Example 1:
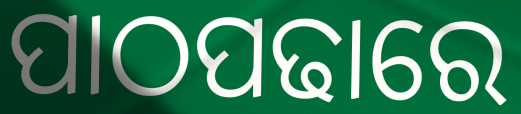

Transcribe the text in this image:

ପାଠପଢାରେ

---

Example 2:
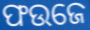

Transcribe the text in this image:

ଫଉଜେ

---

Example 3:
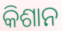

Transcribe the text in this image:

କିଶାନ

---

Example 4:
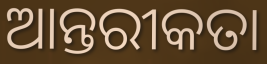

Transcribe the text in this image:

ଆନ୍ତରୀକତା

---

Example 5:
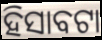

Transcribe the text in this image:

ହିସାବଟା